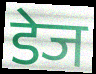
डेज